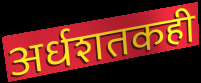
अर्धशतकही